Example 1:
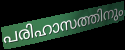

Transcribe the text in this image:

പരിഹാസത്തിനും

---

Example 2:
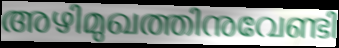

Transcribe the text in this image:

അഴിമുഖത്തിനുവേണ്ടി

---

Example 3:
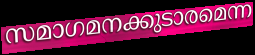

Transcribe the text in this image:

സമാഗമനക്കുടാരമെന്ന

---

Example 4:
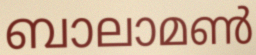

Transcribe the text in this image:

ബാലാമൺ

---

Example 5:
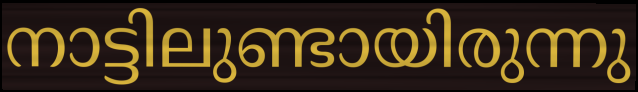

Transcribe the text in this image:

നാട്ടിലുണ്ടായിരുന്നു